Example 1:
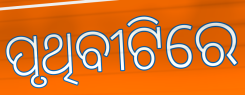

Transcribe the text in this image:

ପୃଥିବୀଟିରେ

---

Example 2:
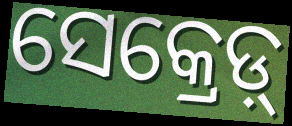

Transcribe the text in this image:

ସେକ୍ରେଡ଼୍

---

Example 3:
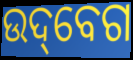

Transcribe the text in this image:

ଉଦ୍‌ବେଗ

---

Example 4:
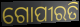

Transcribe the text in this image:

ଗୋପୀରତି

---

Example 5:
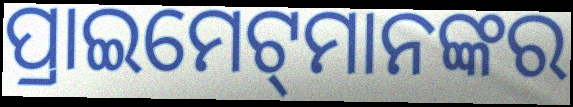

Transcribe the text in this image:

ପ୍ରାଇମେଟ୍‌ମାନଙ୍କର